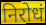
निरोधं